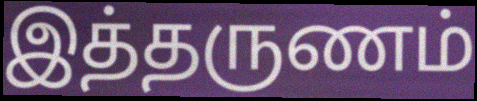
இத்தருணம்